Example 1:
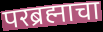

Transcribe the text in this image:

परब्रह्माचा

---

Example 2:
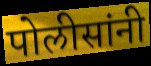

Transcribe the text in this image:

पोलीसांनी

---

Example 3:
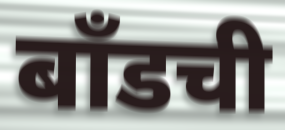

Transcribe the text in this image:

बाँडची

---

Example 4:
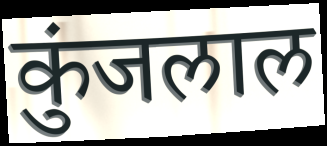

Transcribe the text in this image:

कुंजलाल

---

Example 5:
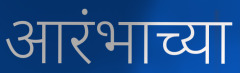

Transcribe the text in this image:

आरंभाच्या